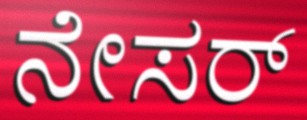
ನೇಸರ್